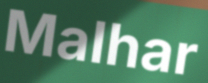
Malhar